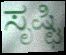
ಸೃಷ್ಟಿ